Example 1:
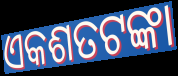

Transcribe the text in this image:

ଏକଶତଟଙ୍କା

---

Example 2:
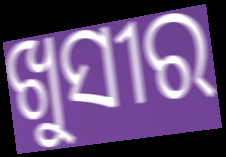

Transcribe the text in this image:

ଖୁସୀର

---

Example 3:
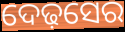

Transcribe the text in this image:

ଦେଢ଼ସେର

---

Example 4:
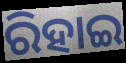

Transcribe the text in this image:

ରିହାଇ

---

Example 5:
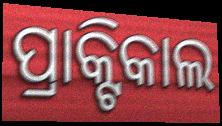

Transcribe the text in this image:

ପ୍ରାକ୍ଟିକାଲ